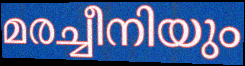
മരച്ചീനിയും